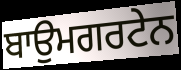
ਬਾਉਮਗਰਟੇਨ